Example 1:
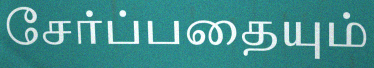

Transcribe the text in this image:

சேர்ப்பதையும்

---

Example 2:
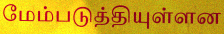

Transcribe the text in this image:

மேம்படுத்தியுள்ளன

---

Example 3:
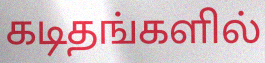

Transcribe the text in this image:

கடிதங்களில்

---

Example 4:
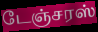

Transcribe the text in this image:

டேஞ்சரஸ்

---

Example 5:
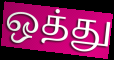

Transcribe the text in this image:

ஒத்து